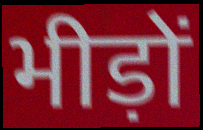
भीड़ों